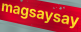
magsaysay